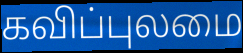
கவிப்புலமை